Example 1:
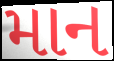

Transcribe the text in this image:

માન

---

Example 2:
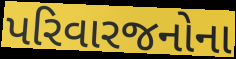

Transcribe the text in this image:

પરિવારજનોના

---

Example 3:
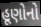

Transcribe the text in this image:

હૂણોનો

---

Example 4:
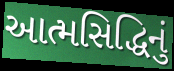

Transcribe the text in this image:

આત્મસિદ્ધિનું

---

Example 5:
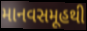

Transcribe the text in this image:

માનવસમૂહથી